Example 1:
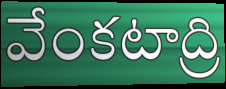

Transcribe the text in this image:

వేంకటాద్రి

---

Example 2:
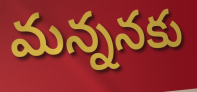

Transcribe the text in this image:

మన్ననకు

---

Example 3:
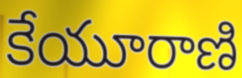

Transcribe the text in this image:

కేయూరాణి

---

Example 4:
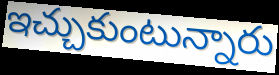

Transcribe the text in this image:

ఇచ్చుకుంటున్నారు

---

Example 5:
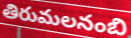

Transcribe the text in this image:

తిరుమలనంబి